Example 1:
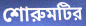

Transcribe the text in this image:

শোরুমটির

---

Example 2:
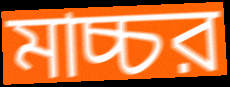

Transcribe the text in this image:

মাচ্চর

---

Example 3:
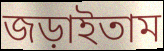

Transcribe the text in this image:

জড়াইতাম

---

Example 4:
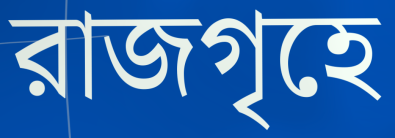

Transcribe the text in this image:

রাজগৃহে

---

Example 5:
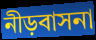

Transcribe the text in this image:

নীড়বাসনা